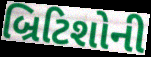
બ્રિટિશોની